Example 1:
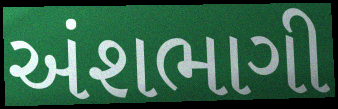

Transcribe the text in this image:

અંશભાગી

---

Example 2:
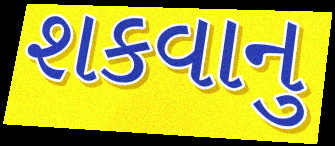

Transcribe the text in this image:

શકવાનુ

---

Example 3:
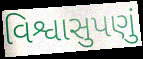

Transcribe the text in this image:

વિશ્વાસુપણું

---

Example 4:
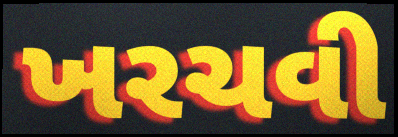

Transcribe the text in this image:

ખરચવી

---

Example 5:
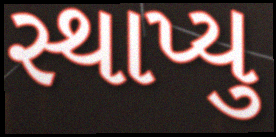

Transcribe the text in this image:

સ્થાપ્યુ